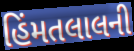
હિંમતલાલની